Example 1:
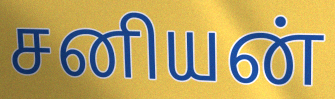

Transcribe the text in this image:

சனியன்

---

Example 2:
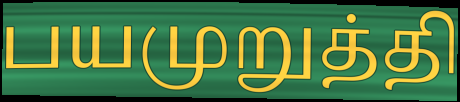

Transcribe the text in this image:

பயமுறுத்தி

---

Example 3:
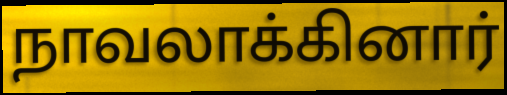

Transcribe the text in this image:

நாவலாக்கினார்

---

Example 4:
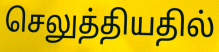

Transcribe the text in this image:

செலுத்தியதில்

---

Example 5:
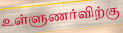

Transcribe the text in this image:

உள்ளுணர்விற்கு